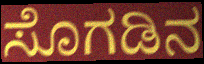
ಸೊಗಡಿನ